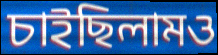
চাইছিলামও